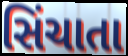
સિંચાતા